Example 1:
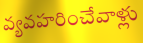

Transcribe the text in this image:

వ్యవహరించేవాళ్లు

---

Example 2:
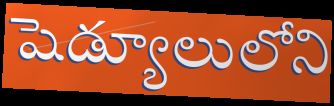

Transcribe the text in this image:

షెడ్యూలులోని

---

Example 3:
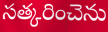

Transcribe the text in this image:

సత్కరించెను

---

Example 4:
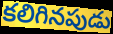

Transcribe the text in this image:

కలిగినపుడు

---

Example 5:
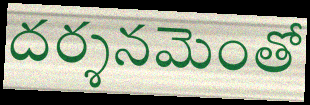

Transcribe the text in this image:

దర్శనమెంతో